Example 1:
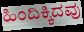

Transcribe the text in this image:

ಹಿಂದಿಕ್ಕಿದವು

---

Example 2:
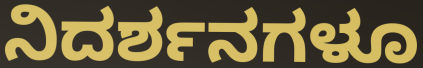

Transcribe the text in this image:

ನಿದರ್ಶನಗಳೂ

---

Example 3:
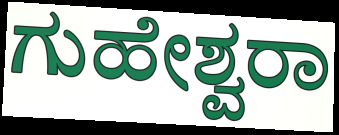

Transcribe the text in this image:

ಗುಹೇಶ್ವರಾ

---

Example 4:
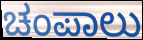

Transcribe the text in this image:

ಚಂಪಾಲು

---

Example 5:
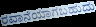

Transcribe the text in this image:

ರವಾನೆಯಾಗಬಹುದು